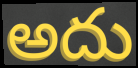
అదు